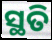
ସ୍ଥତି